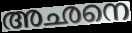
അഛനെ